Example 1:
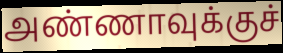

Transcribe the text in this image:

அண்ணாவுக்குச்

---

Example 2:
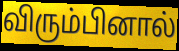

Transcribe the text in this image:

விரும்பினால்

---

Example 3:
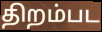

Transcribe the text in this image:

திறம்பட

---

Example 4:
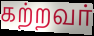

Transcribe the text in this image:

கற்றவர்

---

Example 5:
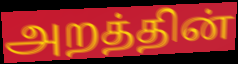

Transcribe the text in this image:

அறத்தின்